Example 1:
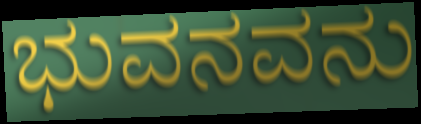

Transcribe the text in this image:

ಭುವನವನು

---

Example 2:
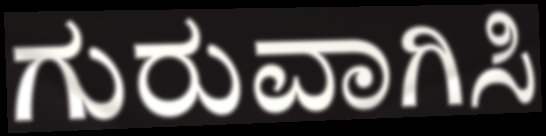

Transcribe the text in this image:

ಗುರುವಾಗಿಸಿ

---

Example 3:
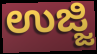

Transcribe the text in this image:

ಉಜ್ಜಿ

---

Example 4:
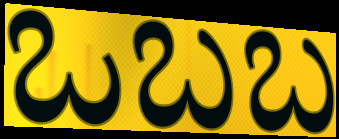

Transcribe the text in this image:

ಒಬಬ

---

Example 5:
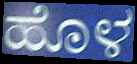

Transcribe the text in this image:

ಹೊಳ